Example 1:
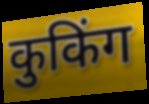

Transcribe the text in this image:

कुकिंग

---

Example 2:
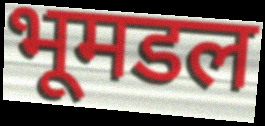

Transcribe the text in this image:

भूमडल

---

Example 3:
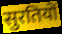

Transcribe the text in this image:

सुरतियों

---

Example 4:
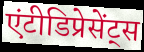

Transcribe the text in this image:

एंटीडिप्रेसेंट्स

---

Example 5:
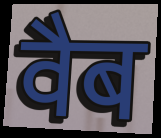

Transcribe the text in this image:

वैब